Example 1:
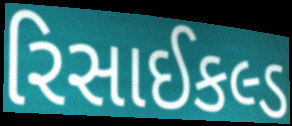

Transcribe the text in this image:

રિસાઈકલ્ડ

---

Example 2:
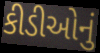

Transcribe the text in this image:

કીડીઓનું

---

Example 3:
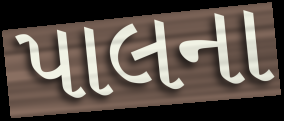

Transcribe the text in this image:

પાલના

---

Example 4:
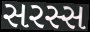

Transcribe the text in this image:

સરસ્સ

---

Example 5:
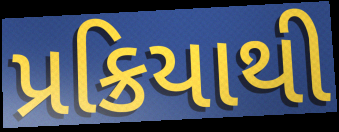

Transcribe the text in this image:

પ્રક્રિયાથી